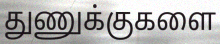
துணுக்குகளை